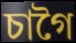
চাগৈ